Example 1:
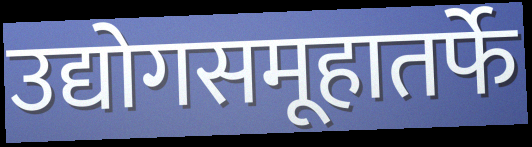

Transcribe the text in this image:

उद्योगसमूहातर्फे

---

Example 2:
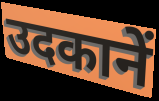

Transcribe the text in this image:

उदकानें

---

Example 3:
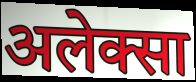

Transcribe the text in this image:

अलेक्‍सा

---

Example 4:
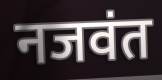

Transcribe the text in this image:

नजवंत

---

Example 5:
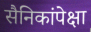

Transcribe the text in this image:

सैनिकांपेक्षा